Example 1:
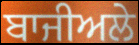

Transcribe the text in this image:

ਬਾਜੀਅਲੇ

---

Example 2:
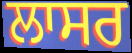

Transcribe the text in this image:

ਲਾਸਰ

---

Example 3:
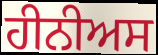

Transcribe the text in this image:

ਹੀਨੀਅਸ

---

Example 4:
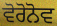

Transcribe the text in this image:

ਵੋਰੋਨੋਵ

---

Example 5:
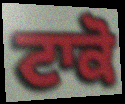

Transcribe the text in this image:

ਟਾਕੋ